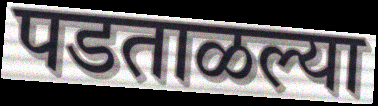
पडताळल्या